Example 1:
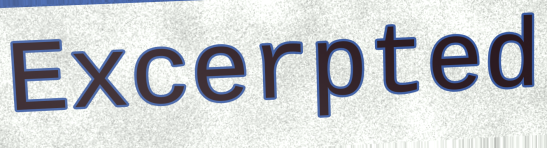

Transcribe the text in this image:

Excerpted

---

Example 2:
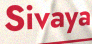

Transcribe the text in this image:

Sivaya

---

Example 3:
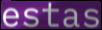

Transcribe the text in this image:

estas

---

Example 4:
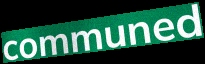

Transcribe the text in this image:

communed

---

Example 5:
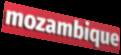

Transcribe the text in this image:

mozambique